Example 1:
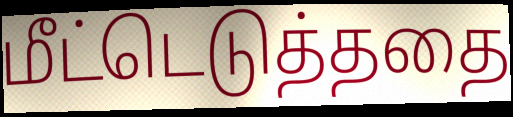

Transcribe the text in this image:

மீட்டெடுத்ததை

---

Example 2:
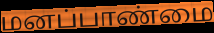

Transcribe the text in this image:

மனப்பாண்மை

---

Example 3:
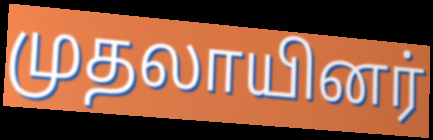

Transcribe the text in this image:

முதலாயினர்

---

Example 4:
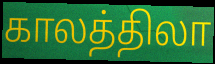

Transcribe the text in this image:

காலத்திலா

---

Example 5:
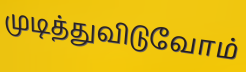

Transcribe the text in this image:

முடித்துவிடுவோம்